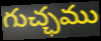
గుచ్ఛము